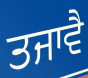
ਤਜਾਵੈ